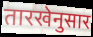
तारखेनुसार